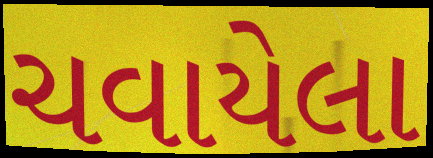
ચવાયેલા